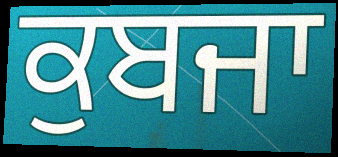
ਕੁਬਜਾ